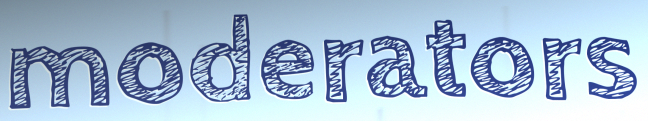
moderators